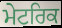
ਮੇਟਰਿਕ